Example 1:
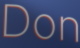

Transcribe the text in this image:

Don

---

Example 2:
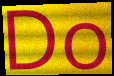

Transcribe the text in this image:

Do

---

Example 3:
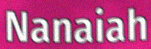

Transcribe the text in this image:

Nanaiah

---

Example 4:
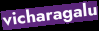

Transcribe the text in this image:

vicharagalu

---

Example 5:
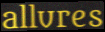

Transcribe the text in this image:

allures